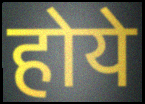
होये